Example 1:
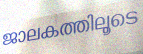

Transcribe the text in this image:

ജാലകത്തിലൂടെ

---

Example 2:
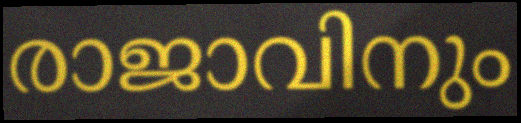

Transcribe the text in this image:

രാജാവിനും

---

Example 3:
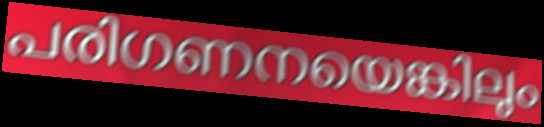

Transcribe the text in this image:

പരിഗണനയെങ്കിലും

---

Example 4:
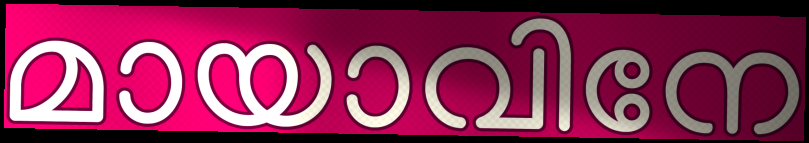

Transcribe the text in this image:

മായാവിനേ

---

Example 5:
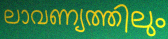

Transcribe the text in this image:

ലാവണ്യത്തിലും